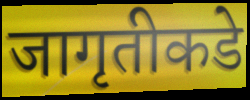
जागृतीकडे